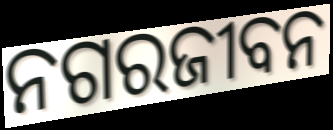
ନଗରଜୀବନ